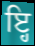
ਇ੍ਹ